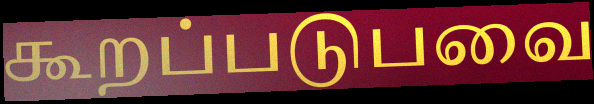
கூறப்படுபவை